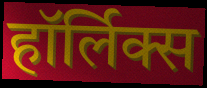
हॉर्लिक्स